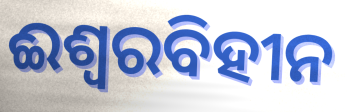
ଈଶ୍ୱରବିହୀନ